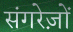
संगरेज़ों